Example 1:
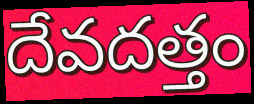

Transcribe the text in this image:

దేవదత్తం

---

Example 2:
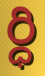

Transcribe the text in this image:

ర్ధి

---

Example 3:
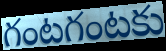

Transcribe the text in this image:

గంటగంటకు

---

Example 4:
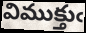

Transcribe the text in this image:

విముక్తుఁ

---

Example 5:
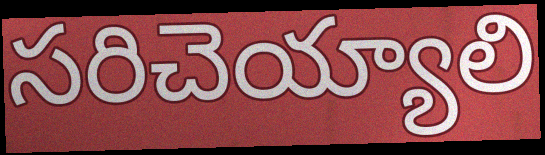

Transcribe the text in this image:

సరిచెయ్యాలి